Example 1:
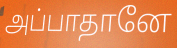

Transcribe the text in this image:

அப்பாதானே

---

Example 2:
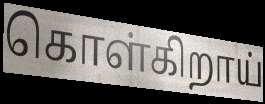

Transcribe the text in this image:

கொள்கிறாய்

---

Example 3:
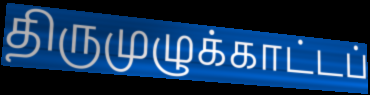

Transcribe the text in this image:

திருமுழுக்காட்டப்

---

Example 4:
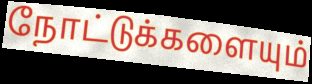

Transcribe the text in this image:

நோட்டுக்களையும்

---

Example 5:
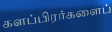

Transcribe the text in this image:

களப்பிரர்களைப்